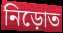
নিড়োত